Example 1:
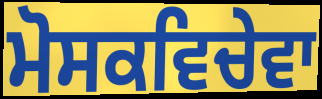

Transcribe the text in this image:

ਮੋਸਕਵਿਚੇਵਾ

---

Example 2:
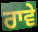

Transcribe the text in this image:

ਰਾਵੇ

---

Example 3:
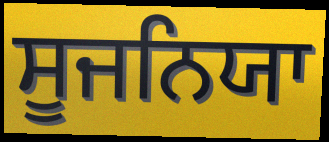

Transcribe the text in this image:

ਸੂਜਨਿਯਾ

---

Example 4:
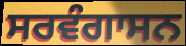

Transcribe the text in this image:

ਸਰਵੰਗਾਸਨ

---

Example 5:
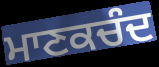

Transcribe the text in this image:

ਮਾਣਕਚੰਦ